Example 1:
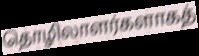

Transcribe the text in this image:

தொழிலாளர்களாகத்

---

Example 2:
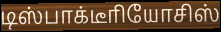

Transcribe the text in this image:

டிஸ்பாக்டீரியோசிஸ்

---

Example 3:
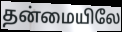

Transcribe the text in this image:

தன்மையிலே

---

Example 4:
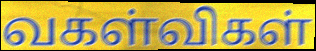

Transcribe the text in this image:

வகள்விகள்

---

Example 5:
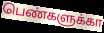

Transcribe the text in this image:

பெண்களுக்கா